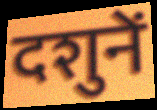
दशुनें